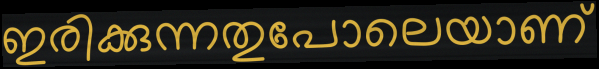
ഇരിക്കുന്നതുപോലെയാണ്